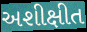
અશીક્ષીત